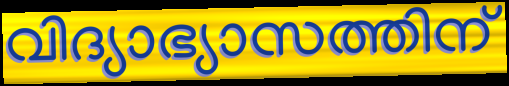
വിദ്യാഭ്യാസത്തിന്